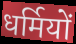
धर्मियों